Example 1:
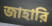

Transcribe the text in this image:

জাহারি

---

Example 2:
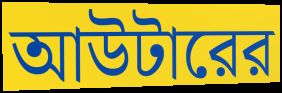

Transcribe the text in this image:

আউটারের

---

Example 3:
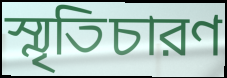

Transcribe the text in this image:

স্মৃতিচারণ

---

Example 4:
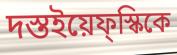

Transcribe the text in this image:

দস্তইয়েফ্স্কিকে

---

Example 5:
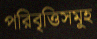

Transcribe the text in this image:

পরিবৃত্তিসমূহ